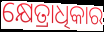
କ୍ଷେତ୍ରାଧିକାର